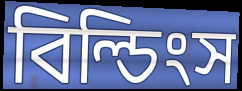
বিল্ডিংস